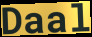
Daal